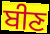
ਬੀਣ